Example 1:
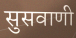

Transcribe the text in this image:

सुसवाणी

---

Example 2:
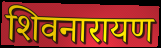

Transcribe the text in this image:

शिवनारायण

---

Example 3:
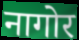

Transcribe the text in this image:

नागोर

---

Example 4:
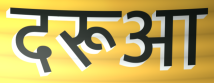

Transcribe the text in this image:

दरूआ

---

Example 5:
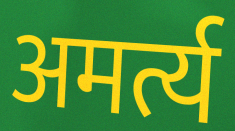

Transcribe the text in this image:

अमर्त्य